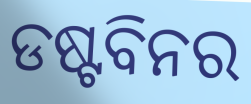
ଡଷ୍ଟବିନର